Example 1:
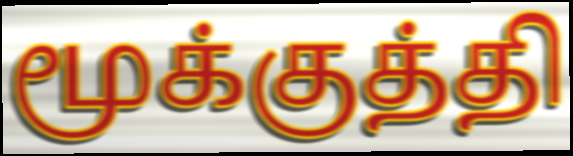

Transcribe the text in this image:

மூக்குத்தி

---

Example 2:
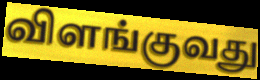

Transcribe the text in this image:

விளங்குவது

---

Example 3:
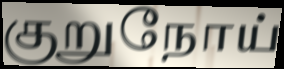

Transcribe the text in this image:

குறுநோய்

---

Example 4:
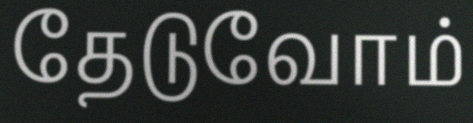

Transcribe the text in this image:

தேடுவோம்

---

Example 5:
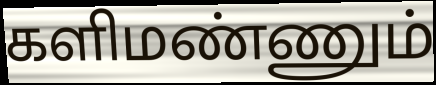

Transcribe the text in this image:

களிமண்ணும்